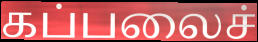
கப்பலைச்